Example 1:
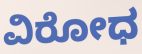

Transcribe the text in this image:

ವಿರೋಧ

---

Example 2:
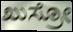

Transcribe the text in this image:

ಖುಸ್ರೋ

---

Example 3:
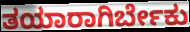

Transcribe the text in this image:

ತಯಾರಾಗಿರ್ಬೇಕು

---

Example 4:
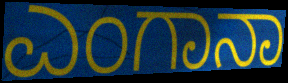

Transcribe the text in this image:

ಎಂಗಾನಾ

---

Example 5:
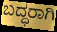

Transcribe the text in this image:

ಬದ್ಧರಾಗಿ